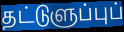
தட்டுளுப்புப்